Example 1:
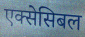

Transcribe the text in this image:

एक्सेसिबल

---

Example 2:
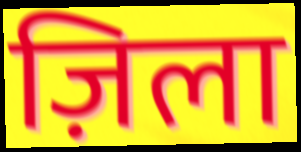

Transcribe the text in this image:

ज़िला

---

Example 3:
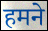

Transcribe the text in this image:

हमने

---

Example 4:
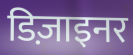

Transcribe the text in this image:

डिज़ाइनर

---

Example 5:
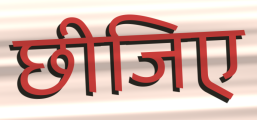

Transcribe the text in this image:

छीजिए